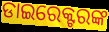
ଡାଇରେକ୍ଟରଙ୍କ